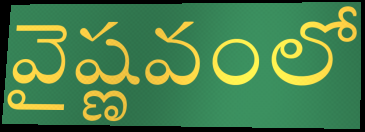
వైష్ణవంలో